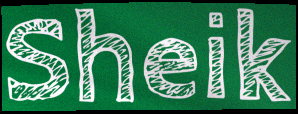
Sheik